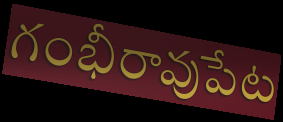
గంభీరావుపేట